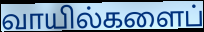
வாயில்களைப்